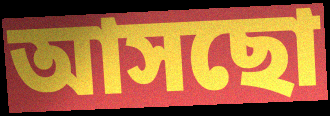
আসছো